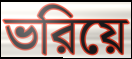
ভরিয়ে